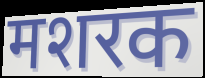
मशरक